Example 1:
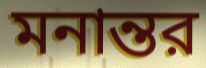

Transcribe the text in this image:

মনান্তর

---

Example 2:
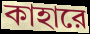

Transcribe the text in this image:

কাহারে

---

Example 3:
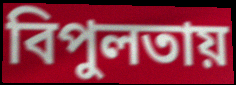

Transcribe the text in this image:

বিপুলতায়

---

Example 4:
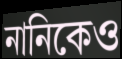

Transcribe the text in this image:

নানিকেও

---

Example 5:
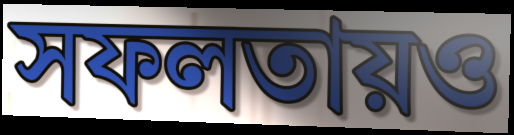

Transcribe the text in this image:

সফলতায়ও